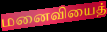
மனைவியைத்